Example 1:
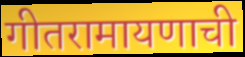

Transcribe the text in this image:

गीतरामायणाची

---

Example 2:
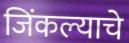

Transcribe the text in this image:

जिंकल्याचे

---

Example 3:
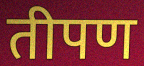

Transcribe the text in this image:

तीपण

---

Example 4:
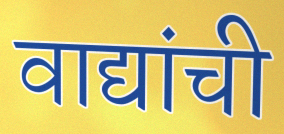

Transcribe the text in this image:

वाद्यांची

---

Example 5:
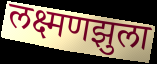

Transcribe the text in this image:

लक्ष्मणझुला